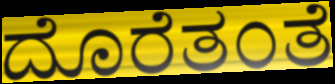
ದೊರೆತಂತೆ